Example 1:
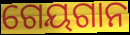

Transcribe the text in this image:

ଗେୟଗାନ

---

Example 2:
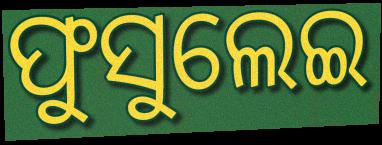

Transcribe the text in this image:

ଫୁସୁଲେଇ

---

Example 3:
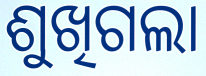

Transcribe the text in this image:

ଶୁଖିଗଲା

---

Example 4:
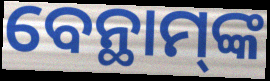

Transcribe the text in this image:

ବେନ୍ଥାମ୍‌ଙ୍କ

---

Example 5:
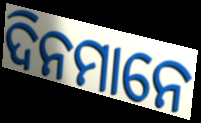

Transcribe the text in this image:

ଦିନମାନେ